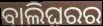
ବାଲିଘରର